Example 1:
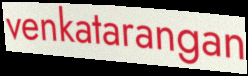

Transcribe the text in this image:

venkatarangan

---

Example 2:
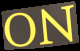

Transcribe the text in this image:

ON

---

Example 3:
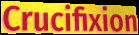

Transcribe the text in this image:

Crucifixion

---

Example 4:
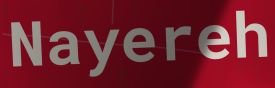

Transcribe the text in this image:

Nayereh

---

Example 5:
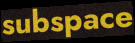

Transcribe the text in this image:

subspace